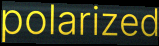
polarized